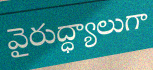
వైరుద్ధ్యాలుగా